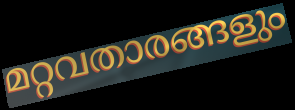
മറ്റവതാരങ്ങളും